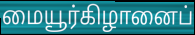
மையூர்கிழானைப்